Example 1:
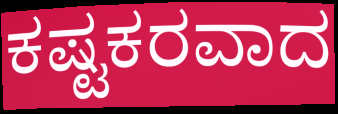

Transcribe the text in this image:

ಕಷ್ಟಕರವಾದ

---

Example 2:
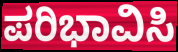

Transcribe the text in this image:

ಪರಿಭಾವಿಸಿ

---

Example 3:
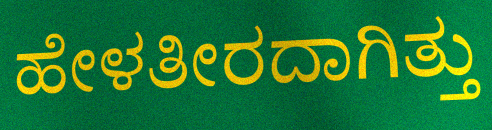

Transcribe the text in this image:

ಹೇಳತೀರದಾಗಿತ್ತು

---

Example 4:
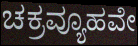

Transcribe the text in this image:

ಚಕ್ರವ್ಯೂಹವೇ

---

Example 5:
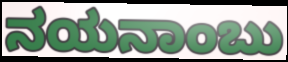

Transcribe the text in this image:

ನಯನಾಂಬು